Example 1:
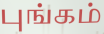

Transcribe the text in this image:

புங்கம்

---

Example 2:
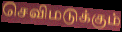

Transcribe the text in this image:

செவிமடுக்கும்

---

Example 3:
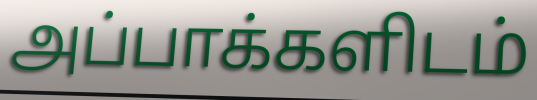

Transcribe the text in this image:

அப்பாக்களிடம்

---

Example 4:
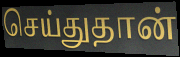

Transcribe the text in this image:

செய்துதான்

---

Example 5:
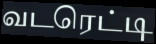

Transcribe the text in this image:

வடரெட்டி